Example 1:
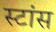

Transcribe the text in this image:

स्टांस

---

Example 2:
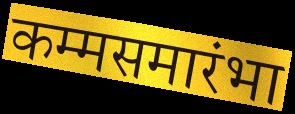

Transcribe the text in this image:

कम्मसमारंभा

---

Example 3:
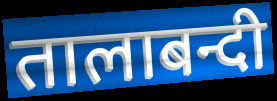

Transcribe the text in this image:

तालाबन्दी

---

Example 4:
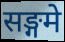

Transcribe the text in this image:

सङ्गमे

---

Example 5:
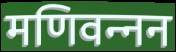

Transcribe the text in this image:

मणिवन्नन